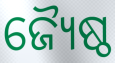
ଜ୍ଯୈଷ୍ଠ